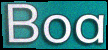
Boa